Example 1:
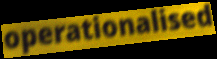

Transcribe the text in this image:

operationalised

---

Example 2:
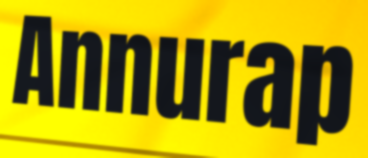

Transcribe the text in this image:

Annurap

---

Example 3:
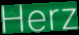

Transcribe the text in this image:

Herz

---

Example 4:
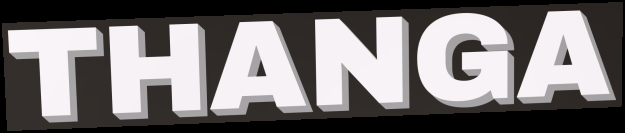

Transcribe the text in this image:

THANGA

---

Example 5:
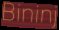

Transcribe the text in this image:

Bininj